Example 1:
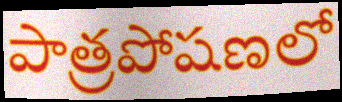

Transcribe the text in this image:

పాత్రపోషణలో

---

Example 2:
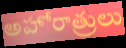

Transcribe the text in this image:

అహోరాత్రులు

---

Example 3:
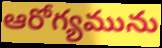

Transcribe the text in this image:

ఆరోగ్యమును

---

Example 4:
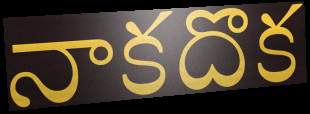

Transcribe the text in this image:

నాకదొక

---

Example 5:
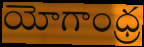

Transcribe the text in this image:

యోగాంధ్ర